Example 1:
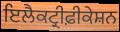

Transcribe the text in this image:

ਇਲੈਕਟ੍ਰੀਫ਼ੀਕੇਸ਼ਨ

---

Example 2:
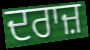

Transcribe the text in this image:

ਦਰਾਜ਼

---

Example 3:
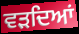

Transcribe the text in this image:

ਵੜਦਿਆਂ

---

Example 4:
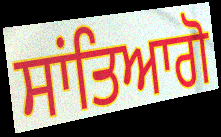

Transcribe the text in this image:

ਸਾਂਤਿਆਗੋ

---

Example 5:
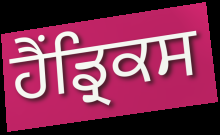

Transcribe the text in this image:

ਹੈਂਡ੍ਰਿਕਸ